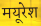
मयूरेश